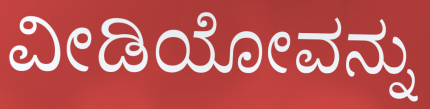
ವೀಡಿಯೋವನ್ನು